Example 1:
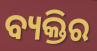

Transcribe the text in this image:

ବ୍ୟକ୍ତିର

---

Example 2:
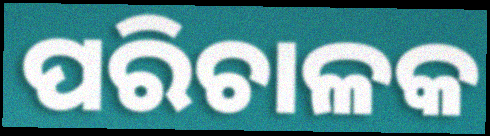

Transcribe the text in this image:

ପରିଚାଳକ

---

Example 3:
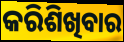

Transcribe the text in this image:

କରିଶିଖିବାର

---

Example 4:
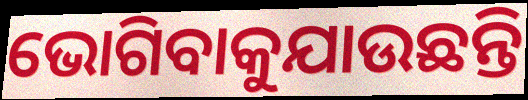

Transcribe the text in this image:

ଭୋଗିବାକୁଯାଉଛନ୍ତି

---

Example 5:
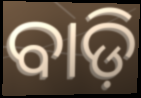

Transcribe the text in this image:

ବାଡ଼ି